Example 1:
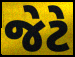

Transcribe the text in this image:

જેટે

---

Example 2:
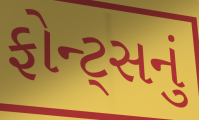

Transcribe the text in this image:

ફોન્ટ્સનું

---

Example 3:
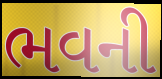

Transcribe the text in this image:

ભવની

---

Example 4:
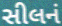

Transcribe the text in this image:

સીલનં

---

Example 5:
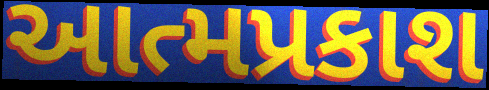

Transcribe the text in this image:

આત્મપ્રકાશ